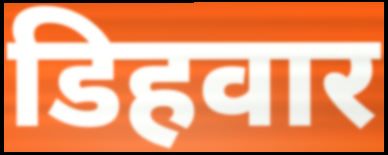
डिहवार